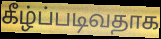
கீழ்ப்படிவதாக